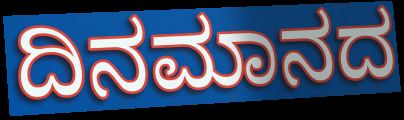
ದಿನಮಾನದ